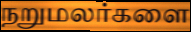
நறுமலர்களை